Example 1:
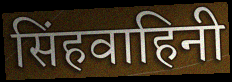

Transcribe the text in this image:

सिंहवाहिनी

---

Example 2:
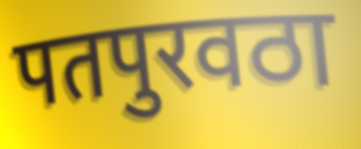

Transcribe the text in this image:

पतपुरवठा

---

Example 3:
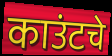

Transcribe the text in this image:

काउंटचे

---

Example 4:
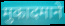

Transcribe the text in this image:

मुकादमाने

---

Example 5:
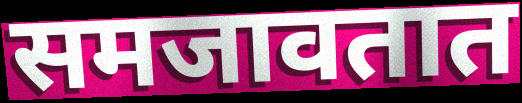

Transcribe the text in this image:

समजावतात